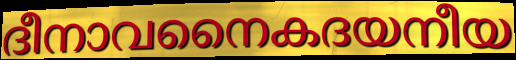
ദീനാവനൈകദയനീയ